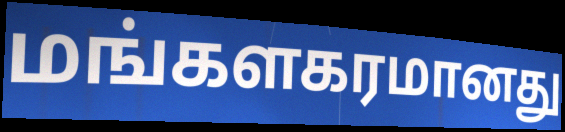
மங்களகரமானது